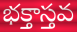
భక్తాస్తవ